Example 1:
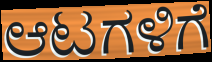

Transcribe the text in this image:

ಆಟಗಳಿಗೆ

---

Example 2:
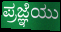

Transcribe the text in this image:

ಪ್ರಜ್ಞೆಯು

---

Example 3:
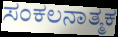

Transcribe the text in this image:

ಸಂಕಲನಾತ್ಮಕ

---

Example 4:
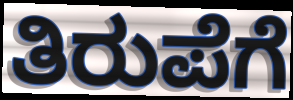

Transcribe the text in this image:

ತಿರುಪೆಗೆ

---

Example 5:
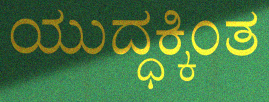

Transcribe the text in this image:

ಯುದ್ಧಕ್ಕಿಂತ